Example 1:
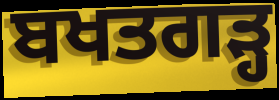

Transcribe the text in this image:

ਬਖਤਗੜ੍ਹ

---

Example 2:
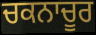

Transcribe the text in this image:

ਚਕਨਾਚੂਰ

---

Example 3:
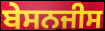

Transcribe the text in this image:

ਬੇਸਨਜੀਸ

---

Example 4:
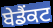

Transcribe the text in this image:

ਬੇਡੈਂਕਟ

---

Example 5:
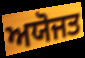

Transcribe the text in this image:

ਅਯੋਜਤ